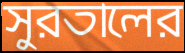
সুরতালের